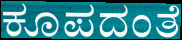
ಕೂಪದಂತೆ